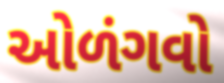
ઓળંગવો